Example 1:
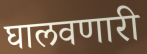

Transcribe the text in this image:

घालवणारी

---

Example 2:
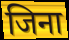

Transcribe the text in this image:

जिना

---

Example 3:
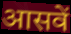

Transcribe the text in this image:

आसवें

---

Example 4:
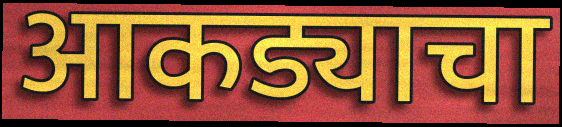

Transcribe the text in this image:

आकड्याचा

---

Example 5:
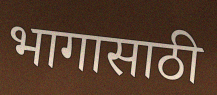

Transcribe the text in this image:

भागासाठी